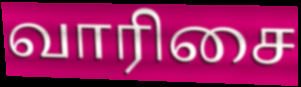
வாரிசை